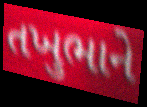
તખુભાને